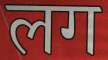
लग